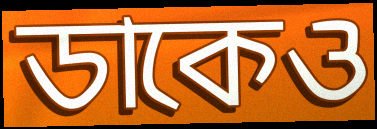
ডাকেও